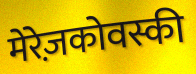
मेरेज़कोवस्की